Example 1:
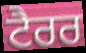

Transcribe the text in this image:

ਟੈਰਰ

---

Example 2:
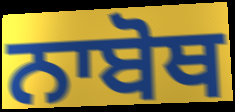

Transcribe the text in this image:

ਨਾਬੋਥ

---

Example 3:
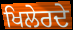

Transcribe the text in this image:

ਖਿਲੇਰਦੇ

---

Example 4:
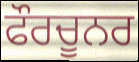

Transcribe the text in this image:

ਫੌਰਚੂਨਰ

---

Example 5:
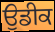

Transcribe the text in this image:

ਉਡੀਕ